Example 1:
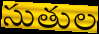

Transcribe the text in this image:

సుతుల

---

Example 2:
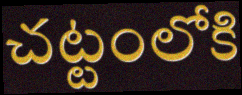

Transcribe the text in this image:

చట్టంలోకి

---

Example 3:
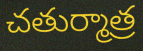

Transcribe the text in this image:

చతుర్మాత్ర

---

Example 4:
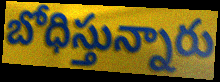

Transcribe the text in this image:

బోధిస్తున్నారు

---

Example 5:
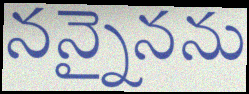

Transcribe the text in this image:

నన్నైనను